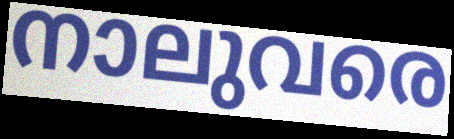
നാലുവരെ